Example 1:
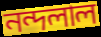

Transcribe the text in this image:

নন্দলাল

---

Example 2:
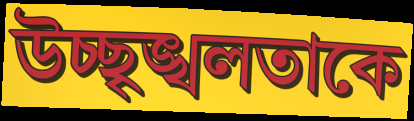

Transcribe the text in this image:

উচ্ছৃঙ্খলতাকে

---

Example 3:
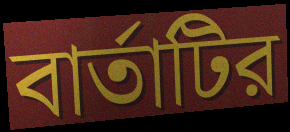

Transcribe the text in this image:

বার্তাটির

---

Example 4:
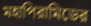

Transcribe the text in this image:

মহাপিরামিডের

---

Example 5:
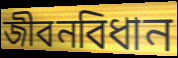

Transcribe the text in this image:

জীবনবিধান